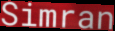
Simran